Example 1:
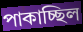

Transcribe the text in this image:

পাকাচ্ছিল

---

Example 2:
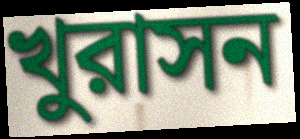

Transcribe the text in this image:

খুরাসন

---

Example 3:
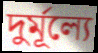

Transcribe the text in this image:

দুর্মূল্যে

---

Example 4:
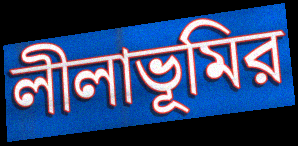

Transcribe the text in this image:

লীলাভূমির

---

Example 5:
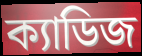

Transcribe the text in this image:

ক্যাডিজ